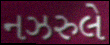
નઝરુલે